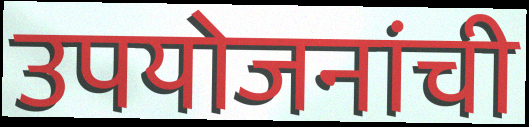
उपयोजनांची